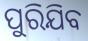
ପୁରିଯିବ